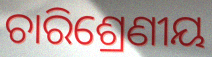
ଚାରିଶ୍ରେଣୀୟ